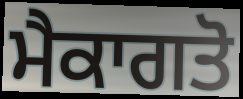
ਮੈਕਾਗਤੋ